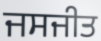
ਜਸਜੀਤ